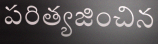
పరిత్యజించిన